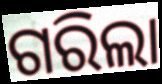
ଗରିଲା